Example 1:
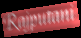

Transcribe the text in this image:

Rajputani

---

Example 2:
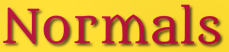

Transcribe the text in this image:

Normals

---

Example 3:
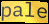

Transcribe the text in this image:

pale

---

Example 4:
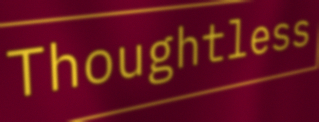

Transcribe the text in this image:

Thoughtless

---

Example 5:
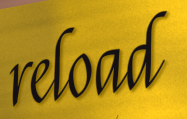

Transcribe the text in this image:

reload